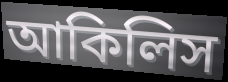
আকিলিস